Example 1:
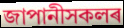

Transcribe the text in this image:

জাপানীসকলৰ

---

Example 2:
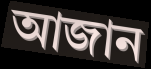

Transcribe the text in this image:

আজান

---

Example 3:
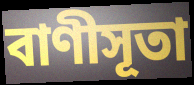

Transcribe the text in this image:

বাণীসূতা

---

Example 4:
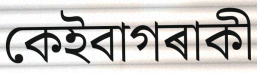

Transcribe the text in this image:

কেইবাগৰাকী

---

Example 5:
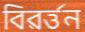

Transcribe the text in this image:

বিৱৰ্ত্তন